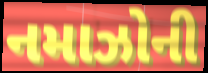
નમાઝોની